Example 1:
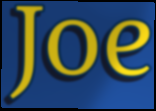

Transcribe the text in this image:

Joe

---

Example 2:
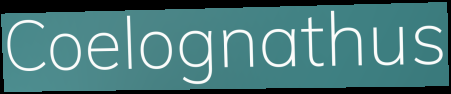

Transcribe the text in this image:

Coelognathus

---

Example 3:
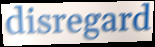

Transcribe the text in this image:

disregard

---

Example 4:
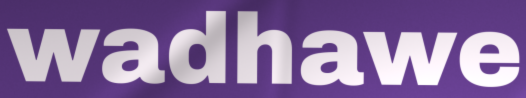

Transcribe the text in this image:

wadhawe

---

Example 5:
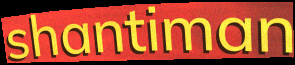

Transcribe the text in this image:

shantiman